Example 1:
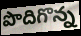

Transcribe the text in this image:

పొదిగొన్న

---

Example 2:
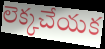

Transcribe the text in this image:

లెక్కచేయక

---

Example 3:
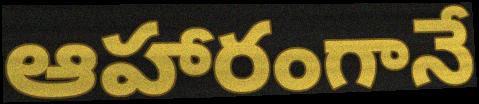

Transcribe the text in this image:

ఆహారంగానే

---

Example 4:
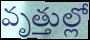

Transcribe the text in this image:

వృత్తుల్లో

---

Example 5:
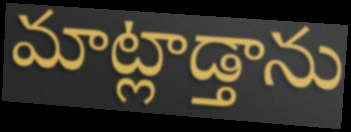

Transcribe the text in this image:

మాట్లాడ్తాను